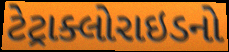
ટેટ્રાક્લોરાઇડનો